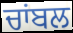
ਚਾਂਬਲ